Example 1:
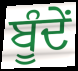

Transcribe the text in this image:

ਬੂੰਦੇਂ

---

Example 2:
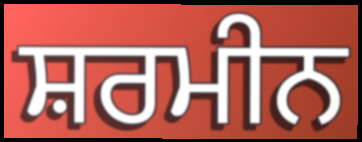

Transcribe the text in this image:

ਸ਼ਰਮੀਨ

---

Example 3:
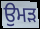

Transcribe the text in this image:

ਉਮੜ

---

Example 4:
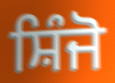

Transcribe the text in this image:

ਸ਼ਿੰਜੋ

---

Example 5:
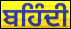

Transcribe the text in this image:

ਬਹਿੰਦੀ